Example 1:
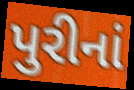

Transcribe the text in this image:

પુરીનાં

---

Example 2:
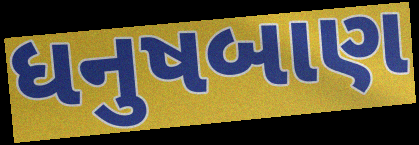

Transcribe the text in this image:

ધનુષબાણ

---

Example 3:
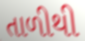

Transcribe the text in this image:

તાળીથી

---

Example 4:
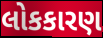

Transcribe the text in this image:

લોકકારણ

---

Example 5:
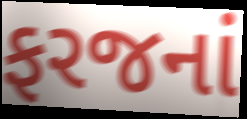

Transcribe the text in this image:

ફરજનાં